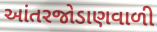
આંતરજોડાણવાળી